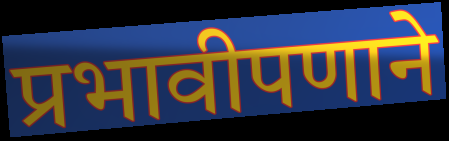
प्रभावीपणाने